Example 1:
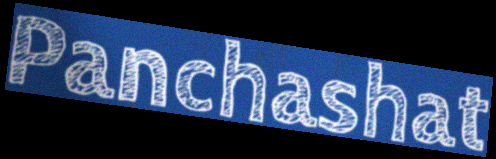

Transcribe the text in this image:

Panchashat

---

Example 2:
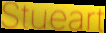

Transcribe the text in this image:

Stueart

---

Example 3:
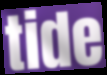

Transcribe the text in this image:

tide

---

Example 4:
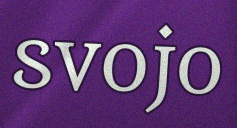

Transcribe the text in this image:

svojo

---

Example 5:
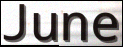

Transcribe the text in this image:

June